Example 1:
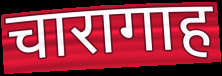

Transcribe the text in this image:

चारागाह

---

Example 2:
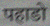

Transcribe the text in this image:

पहाडो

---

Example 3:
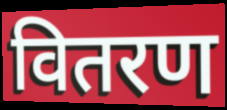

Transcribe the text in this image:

वितरण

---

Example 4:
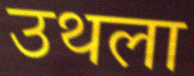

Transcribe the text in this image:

उथला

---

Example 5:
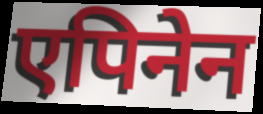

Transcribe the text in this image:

एपिनेन